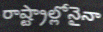
రాష్ట్రాల్లోనైనా